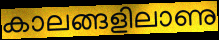
കാലങ്ങളിലാണു